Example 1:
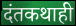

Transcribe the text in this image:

दंतकथाही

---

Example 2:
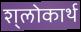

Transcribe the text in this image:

श्लोकार्थ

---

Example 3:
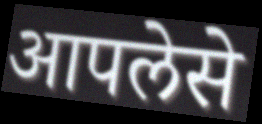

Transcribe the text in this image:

आपलेसे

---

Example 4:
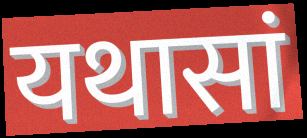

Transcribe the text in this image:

यथासां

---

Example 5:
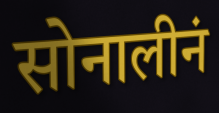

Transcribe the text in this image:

सोनालीनं